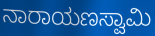
ನಾರಾಯಣಸ್ವಾಮಿ